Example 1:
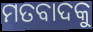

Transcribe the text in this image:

ମତବାଦକୁ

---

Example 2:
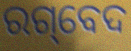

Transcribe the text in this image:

ରଗ୍‌ବେଦ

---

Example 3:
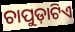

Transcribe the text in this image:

ଚାପୁଡ଼ାଟିଏ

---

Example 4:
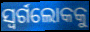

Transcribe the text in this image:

ସ୍ବର୍ଗଲୋକକୁ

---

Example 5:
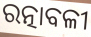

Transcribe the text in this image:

ରତ୍ନାବଳୀ